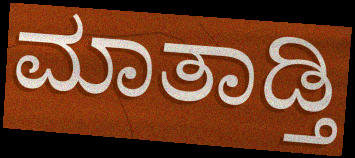
ಮಾತಾಡ್ತಿ